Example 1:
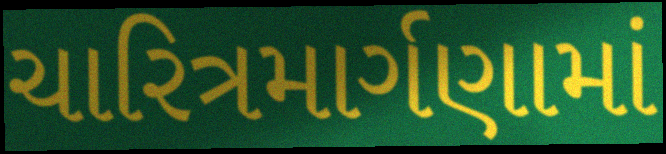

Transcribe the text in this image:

ચારિત્રમાર્ગણામાં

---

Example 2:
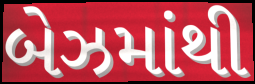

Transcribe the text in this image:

બેઝમાંથી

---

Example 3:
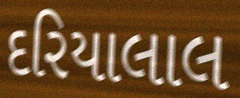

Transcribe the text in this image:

દરિયાલાલ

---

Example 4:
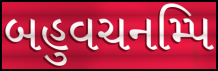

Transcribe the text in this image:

બહુવચનમ્પિ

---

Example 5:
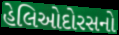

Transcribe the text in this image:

હેલિઓદોરસનો